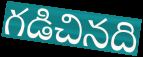
గడిచినది